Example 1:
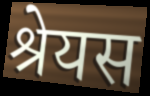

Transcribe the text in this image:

श्रेयस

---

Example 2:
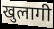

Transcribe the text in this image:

खुलागी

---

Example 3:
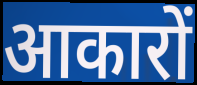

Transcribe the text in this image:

आकारों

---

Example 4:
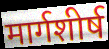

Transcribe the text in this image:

मार्गशीर्ष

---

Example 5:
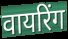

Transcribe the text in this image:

वायरिंग